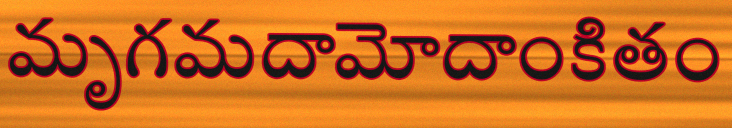
మృగమదామోదాంకితం